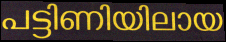
പട്ടിണിയിലായ